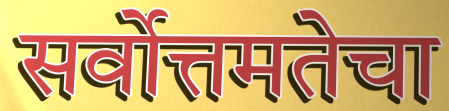
सर्वोत्तमतेचा